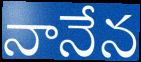
నానేన